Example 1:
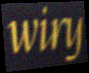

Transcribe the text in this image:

wiry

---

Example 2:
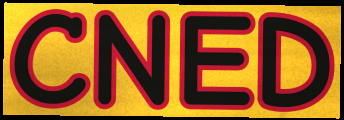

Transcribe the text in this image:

CNED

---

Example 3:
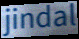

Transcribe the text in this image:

jindal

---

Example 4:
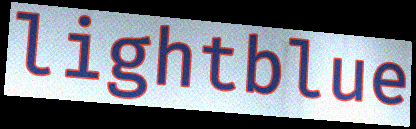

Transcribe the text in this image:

lightblue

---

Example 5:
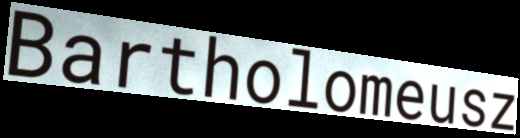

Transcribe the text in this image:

Bartholomeusz